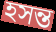
হসন্ত